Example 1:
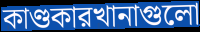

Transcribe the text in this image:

কাণ্ডকারখানাগুলো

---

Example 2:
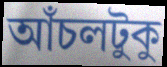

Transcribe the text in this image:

আঁচলটুকু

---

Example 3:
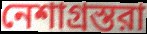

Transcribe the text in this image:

নেশাগ্রস্তরা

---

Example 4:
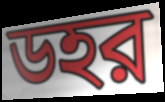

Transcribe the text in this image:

ডহর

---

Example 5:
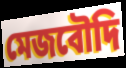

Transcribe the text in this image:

মেজবৌদি